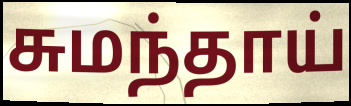
சுமந்தாய்